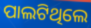
ପାଲଟିଥିଲେ